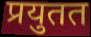
प्रयुतत